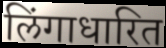
लिंगाधारित